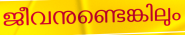
ജീവനുണ്ടെങ്കിലും